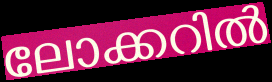
ലോക്കറിൽ